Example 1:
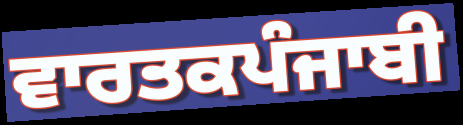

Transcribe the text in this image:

ਵਾਰਤਕਪੰਜਾਬੀ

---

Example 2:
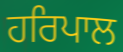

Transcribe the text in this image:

ਹਰਿਪਾਲ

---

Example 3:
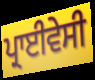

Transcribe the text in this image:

ਪ੍ਰਾਈਵੇਸੀ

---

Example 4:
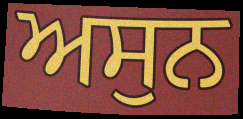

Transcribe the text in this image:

ਅਸੁਨ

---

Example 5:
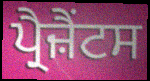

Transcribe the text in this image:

ਪ੍ਰੈਜ਼ੈਂਟਸ